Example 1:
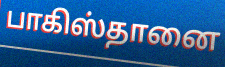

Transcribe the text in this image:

பாகிஸ்தானை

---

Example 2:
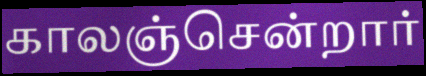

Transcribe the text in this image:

காலஞ்சென்றார்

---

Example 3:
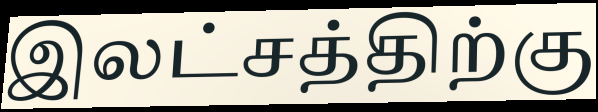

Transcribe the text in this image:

இலட்சத்திற்கு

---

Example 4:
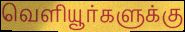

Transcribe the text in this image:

வெளியூர்களுக்கு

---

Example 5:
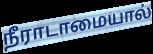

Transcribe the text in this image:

நீராடாமையால்